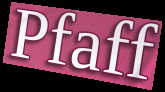
Pfaff